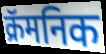
क्रॅमनिक